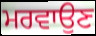
ਮਰਵਾਉਣ